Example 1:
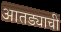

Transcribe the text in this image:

आतड्याची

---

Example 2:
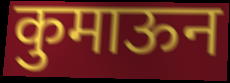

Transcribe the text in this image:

कुमाऊन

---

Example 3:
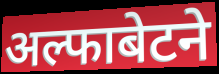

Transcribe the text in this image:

अल्फाबेटने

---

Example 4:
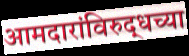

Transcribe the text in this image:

आमदारांविरुद्धच्या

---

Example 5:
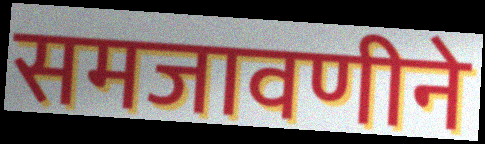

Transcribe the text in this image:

समजावणीने